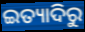
ଇତ୍ୟାଦିରୁ